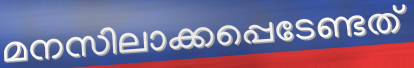
മനസിലാക്കപ്പെടേണ്ടത്